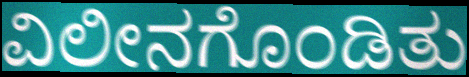
ವಿಲೀನಗೊಂಡಿತು